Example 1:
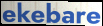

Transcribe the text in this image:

ekebare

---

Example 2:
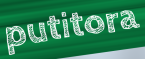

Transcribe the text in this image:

putitora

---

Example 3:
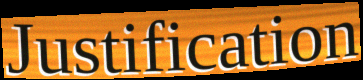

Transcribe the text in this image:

Justification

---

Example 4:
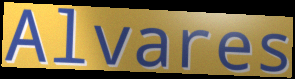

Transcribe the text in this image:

Alvares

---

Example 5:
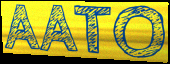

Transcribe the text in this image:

AATO